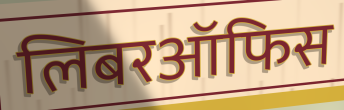
लिबरऑफिस